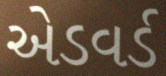
એડવર્ડ